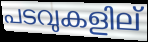
പടവുകളില്